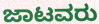
ಜಾಟವರು